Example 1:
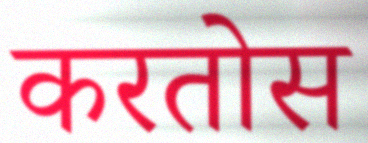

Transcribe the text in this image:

करतोस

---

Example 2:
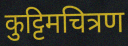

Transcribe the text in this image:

कुट्टिमचित्रण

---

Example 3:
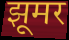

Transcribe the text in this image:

झूमर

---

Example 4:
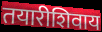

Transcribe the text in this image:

तयारीशिवाय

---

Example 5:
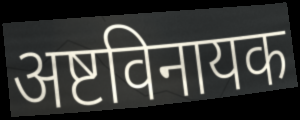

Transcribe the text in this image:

अष्टविनायक